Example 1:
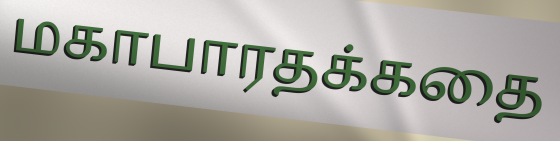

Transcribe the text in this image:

மகாபாரதக்கதை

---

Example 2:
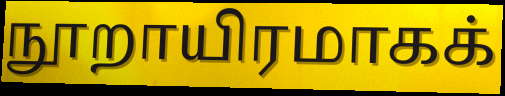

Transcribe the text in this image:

நூறாயிரமாகக்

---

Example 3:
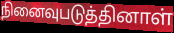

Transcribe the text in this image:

நினைவுபடுத்தினாள்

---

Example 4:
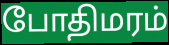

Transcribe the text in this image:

போதிமரம்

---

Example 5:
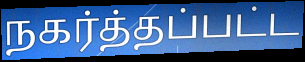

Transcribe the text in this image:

நகர்த்தப்பட்ட